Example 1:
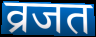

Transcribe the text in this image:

व्रजत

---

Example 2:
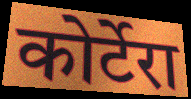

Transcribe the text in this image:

कोर्टेरा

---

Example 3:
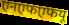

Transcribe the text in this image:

एनएफएफयू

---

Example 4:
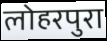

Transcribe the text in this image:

लोहरपुरा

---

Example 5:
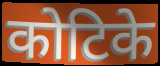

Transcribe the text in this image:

कोटिके